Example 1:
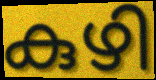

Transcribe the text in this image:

കുഴി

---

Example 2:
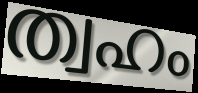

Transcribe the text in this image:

ത്വഹം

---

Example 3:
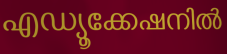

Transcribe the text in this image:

എഡ്യൂക്കേഷനിൽ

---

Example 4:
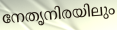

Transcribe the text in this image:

നേതൃനിരയിലും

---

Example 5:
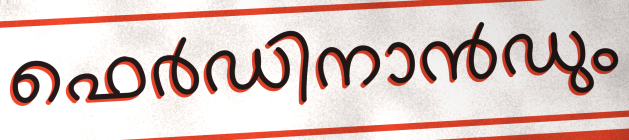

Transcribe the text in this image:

ഫെർഡിനാൻഡും